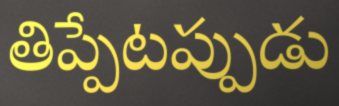
తిప్పేటప్పుడు